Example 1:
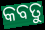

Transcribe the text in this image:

କବତୁ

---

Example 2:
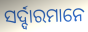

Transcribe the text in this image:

ସର୍ଦ୍ଦାରମାନେ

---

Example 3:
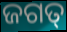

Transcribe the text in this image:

ଜଗତ୍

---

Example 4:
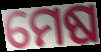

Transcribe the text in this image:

ମେଷ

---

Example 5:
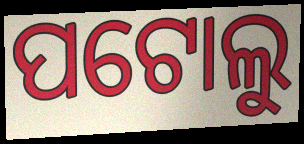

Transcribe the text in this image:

ପଟୋଲୁ